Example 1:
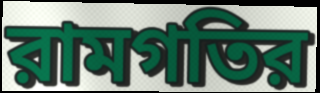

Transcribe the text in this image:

রামগতির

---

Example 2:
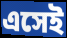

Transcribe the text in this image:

এসেই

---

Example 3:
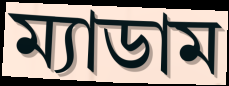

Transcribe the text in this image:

ম্যাডাম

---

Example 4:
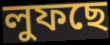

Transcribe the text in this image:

লুফছে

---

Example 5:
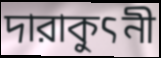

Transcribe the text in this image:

দারাকুৎনী